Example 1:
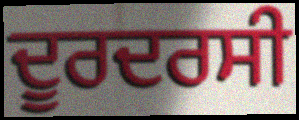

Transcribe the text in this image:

ਦੂਰਦਰਸੀ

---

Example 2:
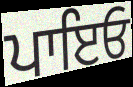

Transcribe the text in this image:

ਪਾਇਓ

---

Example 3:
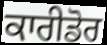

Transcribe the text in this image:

ਕਾਰੀਡੋਰ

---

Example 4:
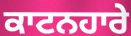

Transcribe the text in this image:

ਕਾਟਨਹਾਰੇ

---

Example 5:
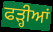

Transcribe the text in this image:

ਫੜ੍ਹੀਆਂ